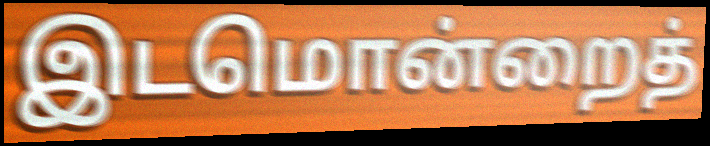
இடமொன்றைத்